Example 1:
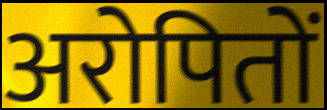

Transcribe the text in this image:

अरोपितों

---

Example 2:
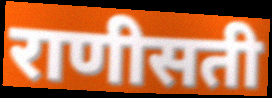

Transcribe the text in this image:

राणीसती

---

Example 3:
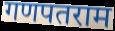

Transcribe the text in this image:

गणपतराम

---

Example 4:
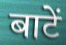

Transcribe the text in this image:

बाटें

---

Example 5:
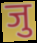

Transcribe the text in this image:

जु